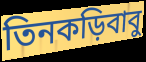
তিনকড়িবাবু